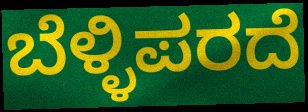
ಬೆಳ್ಳಿಪರದೆ